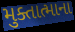
મુક્તાત્માના